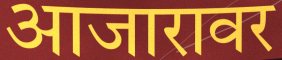
आजारावर